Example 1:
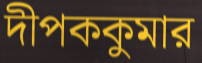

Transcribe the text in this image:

দীপককুমার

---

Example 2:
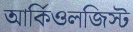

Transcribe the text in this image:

আর্কিওলজিস্ট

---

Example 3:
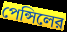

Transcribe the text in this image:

পেন্সিলের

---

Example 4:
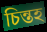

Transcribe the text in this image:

চিন্তহ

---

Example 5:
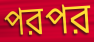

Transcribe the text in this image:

পরপর